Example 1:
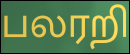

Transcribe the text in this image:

பலரறி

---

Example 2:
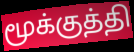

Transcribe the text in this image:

மூக்குத்தி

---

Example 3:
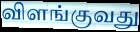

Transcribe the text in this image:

விளங்குவது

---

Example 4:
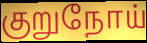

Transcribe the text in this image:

குறுநோய்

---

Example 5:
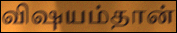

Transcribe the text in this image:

விஷயம்தான்